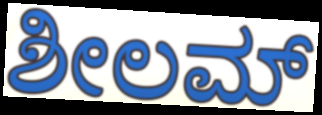
ಶೀಲಮ್